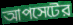
আপসেটের